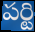
పర్టి